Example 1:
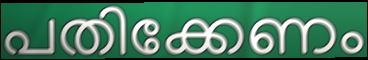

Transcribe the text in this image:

പതിക്കേണം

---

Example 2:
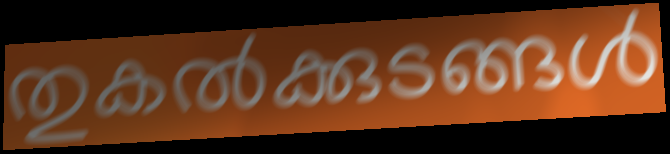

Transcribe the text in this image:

തുകൽക്കുടങ്ങൾ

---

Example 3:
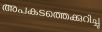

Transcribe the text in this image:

അപകടത്തെക്കുറിച്ചു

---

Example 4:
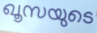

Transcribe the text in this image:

ഖൂസയുടെ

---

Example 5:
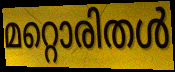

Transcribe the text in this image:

മറ്റൊരിതൾ